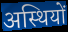
अस्थियों